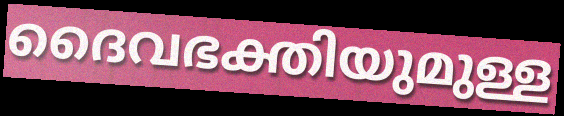
ദൈവഭക്തിയുമുള്ള